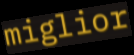
miglior